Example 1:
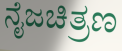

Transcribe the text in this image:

ನೈಜಚಿತ್ರಣ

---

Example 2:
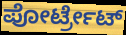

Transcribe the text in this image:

ಪೋರ್ಟ್ರೇಟ್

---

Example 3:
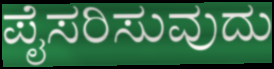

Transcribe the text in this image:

ಪೈಸರಿಸುವುದು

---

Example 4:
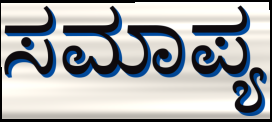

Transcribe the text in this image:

ಸಮಾಪ್ಯ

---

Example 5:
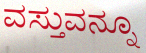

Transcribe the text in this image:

ವಸ್ತುವನ್ನೂ